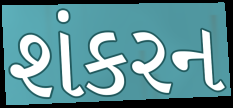
શંકરન